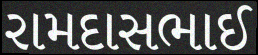
રામદાસભાઈ